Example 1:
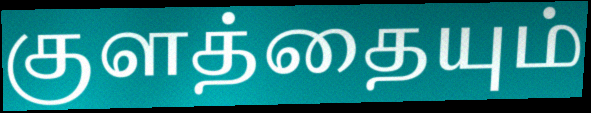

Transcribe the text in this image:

குளத்தையும்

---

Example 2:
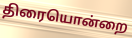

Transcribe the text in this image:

திரையொன்றை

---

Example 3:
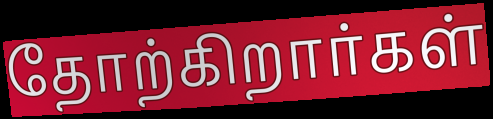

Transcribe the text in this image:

தோற்கிறார்கள்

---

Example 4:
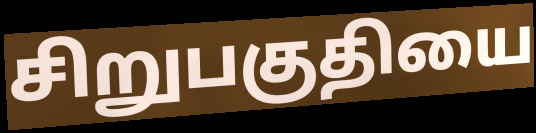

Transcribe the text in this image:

சிறுபகுதியை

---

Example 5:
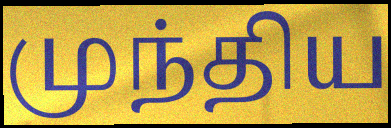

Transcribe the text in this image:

முந்திய